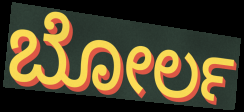
ಬೋರ್ಲ